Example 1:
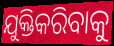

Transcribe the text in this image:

ଯୁକ୍ତିକରିବାକୁ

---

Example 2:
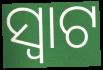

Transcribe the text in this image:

ସ୍ୱାଟ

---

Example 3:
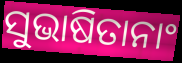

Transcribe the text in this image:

ସୁଭାଷିତାନାଂ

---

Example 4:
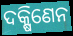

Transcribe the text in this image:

ଦକ୍ଷିଣେନ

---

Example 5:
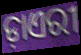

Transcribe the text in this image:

ଡ଼ାଏରୀ